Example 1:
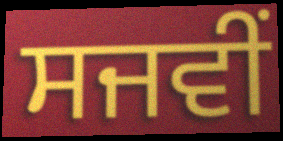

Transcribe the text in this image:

ਸਜਵੀਂ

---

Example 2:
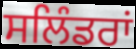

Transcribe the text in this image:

ਸਲਿੰਡਰਾਂ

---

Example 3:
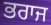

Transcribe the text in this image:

ਭਰਾਜ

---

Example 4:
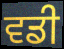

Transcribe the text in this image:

ਵਡੀ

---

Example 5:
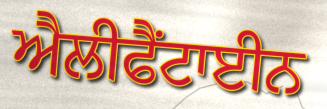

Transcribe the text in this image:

ਐਲੀਫੈਂਟਾਈਨ